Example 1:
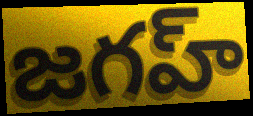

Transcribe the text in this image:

జగహ్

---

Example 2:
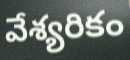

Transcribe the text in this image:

వేశ్యరికం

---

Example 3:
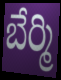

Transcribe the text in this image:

బేర్మి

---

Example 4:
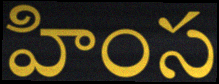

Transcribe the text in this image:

హింస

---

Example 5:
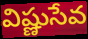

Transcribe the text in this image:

విష్ణుసేవ